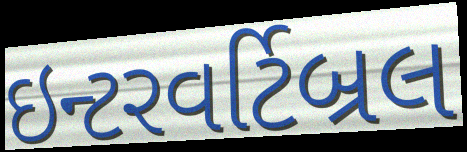
ઇન્ટરવર્ટિબ્રલ